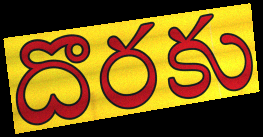
దొరకు